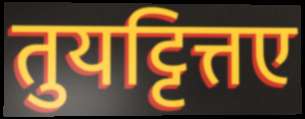
तुयट्टित्तए